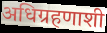
अधिग्रहणाशी